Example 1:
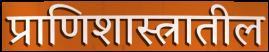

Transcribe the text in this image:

प्राणिशास्त्रातील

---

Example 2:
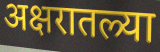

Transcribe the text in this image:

अक्षरातल्या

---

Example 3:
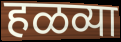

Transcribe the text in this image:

हळव्या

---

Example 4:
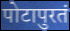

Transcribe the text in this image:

पोटापुरतं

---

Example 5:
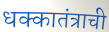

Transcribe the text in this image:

धक्कातंत्राची